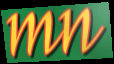
mn